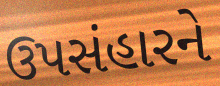
ઉપસંહારને